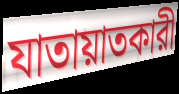
যাতায়াতকারী